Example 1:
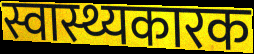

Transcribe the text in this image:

स्वास्थ्यकारक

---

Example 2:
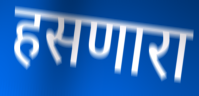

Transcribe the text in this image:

हसणारा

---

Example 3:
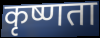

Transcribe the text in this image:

कृष्णता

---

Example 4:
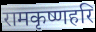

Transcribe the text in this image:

रामकृष्णहरि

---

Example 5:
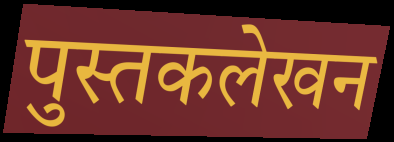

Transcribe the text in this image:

पुस्तकलेखन